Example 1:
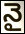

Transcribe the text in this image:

నై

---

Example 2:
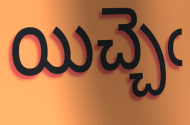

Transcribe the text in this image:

యిచ్చెఁ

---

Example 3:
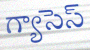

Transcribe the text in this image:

గ్యాసెస్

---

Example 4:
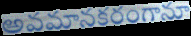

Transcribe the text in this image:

అవమానకరంగానూ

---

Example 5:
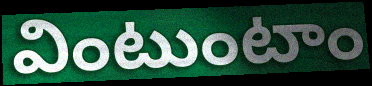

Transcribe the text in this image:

వింటుంటాం